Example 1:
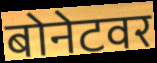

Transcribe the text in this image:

बोनेटवर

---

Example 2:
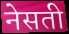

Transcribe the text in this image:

नेसती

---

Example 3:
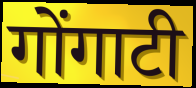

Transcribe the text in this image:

गोंगाटी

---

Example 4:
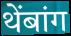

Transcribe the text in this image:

थेंबांग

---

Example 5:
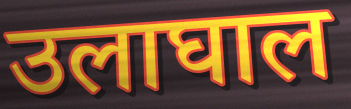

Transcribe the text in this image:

उलाघाल